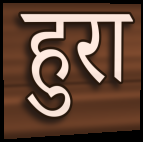
हुरा